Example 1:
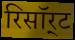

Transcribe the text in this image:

रिसॉर्ट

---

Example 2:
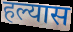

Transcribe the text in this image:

हल्यास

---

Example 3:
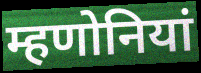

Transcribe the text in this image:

म्हणोनियां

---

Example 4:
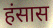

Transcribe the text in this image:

हंसास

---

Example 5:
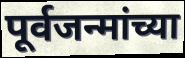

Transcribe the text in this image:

पूर्वजन्मांच्या